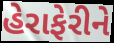
હેરાફેરીને